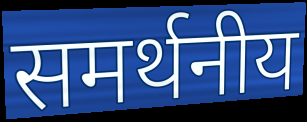
समर्थनीय